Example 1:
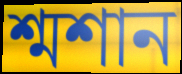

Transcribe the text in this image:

শ্মশান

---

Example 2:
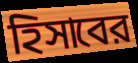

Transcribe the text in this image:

হিসাবের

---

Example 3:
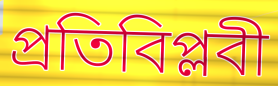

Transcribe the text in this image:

প্রতিবিপ্লবী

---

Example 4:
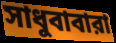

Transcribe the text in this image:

সাধুবাবারা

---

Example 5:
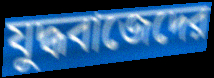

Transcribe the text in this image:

যুদ্ধবাজেদের